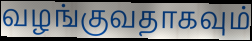
வழங்குவதாகவும்